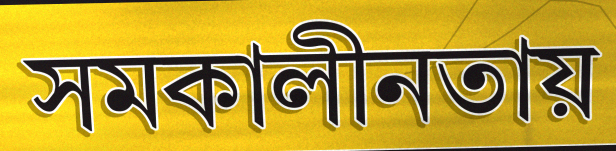
সমকালীনতায়